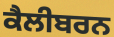
ਕੈਲੀਬਰਨ